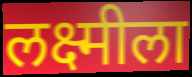
लक्ष्मीला